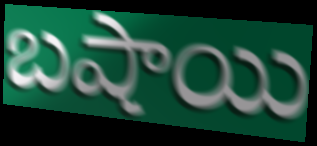
బషాయి